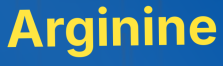
Arginine